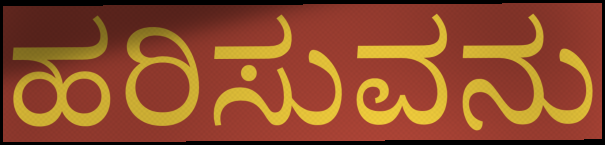
ಹರಿಸುವನು